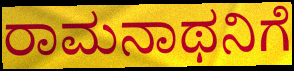
ರಾಮನಾಥನಿಗೆ